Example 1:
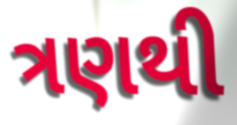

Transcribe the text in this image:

ત્રણથી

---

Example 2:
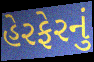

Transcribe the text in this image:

હેરફેરનું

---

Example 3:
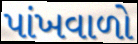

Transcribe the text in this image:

પાંખવાળો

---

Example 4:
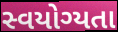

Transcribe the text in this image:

સ્વયોગ્યતા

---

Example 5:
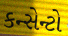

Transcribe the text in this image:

કન્સેન્ટો